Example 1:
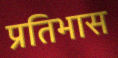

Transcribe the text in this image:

प्रतिभास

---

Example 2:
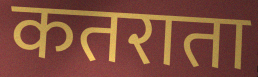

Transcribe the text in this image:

कतराता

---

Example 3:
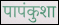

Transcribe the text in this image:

पापंकुशा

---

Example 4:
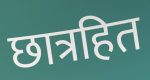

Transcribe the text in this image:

छात्रहित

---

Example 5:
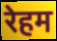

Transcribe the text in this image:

रेहम